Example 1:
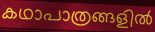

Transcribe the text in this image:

കഥാപാത്രങ്ങളിൽ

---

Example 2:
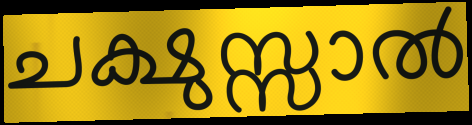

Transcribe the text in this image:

ചക്ഷുസ്സാൽ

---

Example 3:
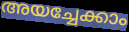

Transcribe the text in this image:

അയച്ചേക്കാം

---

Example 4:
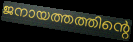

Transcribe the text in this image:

ജനായത്തത്തിന്റെ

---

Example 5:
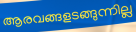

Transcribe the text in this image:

ആരവങ്ങളടങ്ങുന്നില്ല